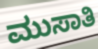
ಮುಸಾತಿ